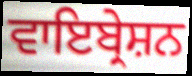
ਵਾਇਬ੍ਰੇਸ਼ਨ